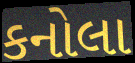
કનોલા